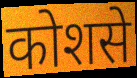
कोशसे